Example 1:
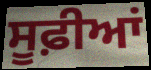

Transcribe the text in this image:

ਸੂਫ਼ੀਆਂ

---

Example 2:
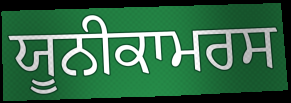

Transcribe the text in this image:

ਯੂਨੀਕਾਮਰਸ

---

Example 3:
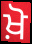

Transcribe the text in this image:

ਖ਼ੋ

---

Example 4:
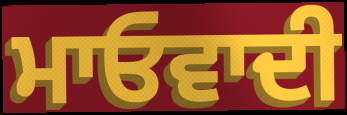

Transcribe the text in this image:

ਮਾਓਵਾਦੀ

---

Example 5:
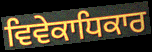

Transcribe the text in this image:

ਵਿਵੇਕਾਧਿਕਾਰ